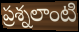
ప్రశ్నలాంటి